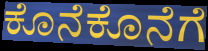
ಕೊನೆಕೊನೆಗೆ